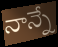
నాన్నే